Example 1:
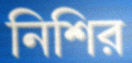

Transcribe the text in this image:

নিশির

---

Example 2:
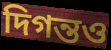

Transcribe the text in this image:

দিগন্তও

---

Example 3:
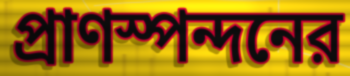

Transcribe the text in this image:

প্রাণস্পন্দনের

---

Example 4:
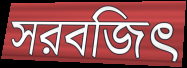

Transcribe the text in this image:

সরবজিৎ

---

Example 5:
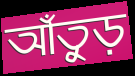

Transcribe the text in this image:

আঁতুড়